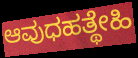
ಆವುಧಹತ್ಥೇಹಿ